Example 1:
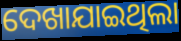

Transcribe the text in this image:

ଦେଖାଯାଇଥିଲା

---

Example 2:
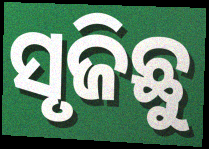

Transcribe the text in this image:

ସୃଜିଛୁ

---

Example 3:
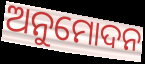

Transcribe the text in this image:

ଅନୁମୋଦନ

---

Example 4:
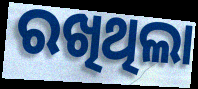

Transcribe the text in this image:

ରଖିଥିଲା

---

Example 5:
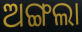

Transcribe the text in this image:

ଅଙ୍ଗଲା